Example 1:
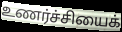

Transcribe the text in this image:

உணர்ச்சியைக்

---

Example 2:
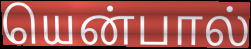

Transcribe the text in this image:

யென்பால்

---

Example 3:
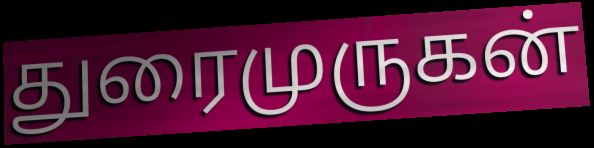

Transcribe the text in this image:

துரைமுருகன்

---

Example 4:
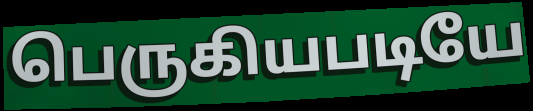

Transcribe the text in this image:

பெருகியபடியே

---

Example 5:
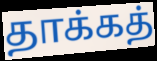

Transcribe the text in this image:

தாக்கத்